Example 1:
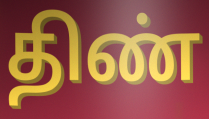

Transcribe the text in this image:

திண்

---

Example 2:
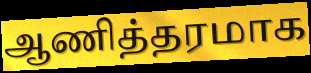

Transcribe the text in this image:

ஆணித்தரமாக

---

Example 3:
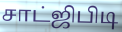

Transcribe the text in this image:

சாட்ஜிபிடி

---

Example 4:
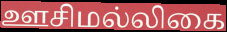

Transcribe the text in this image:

ஊசிமல்லிகை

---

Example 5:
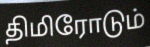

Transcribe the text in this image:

திமிரோடும்